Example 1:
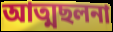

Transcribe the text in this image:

আত্মছলনা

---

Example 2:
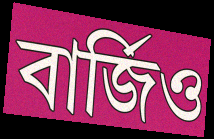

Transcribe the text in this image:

বার্জিও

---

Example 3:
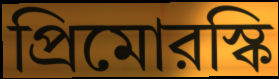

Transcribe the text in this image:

প্রিমোরস্কি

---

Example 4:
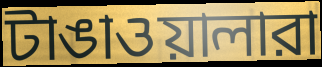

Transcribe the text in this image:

টাঙাওয়ালারা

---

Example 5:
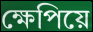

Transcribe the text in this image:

ক্ষেপিয়ে